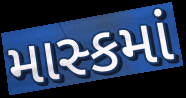
માસ્કમાં